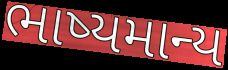
ભાષ્યમાન્ય